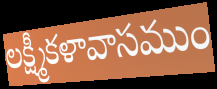
లక్ష్మీకళావాసముం